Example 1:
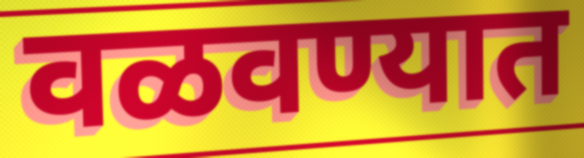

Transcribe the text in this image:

वळवण्यात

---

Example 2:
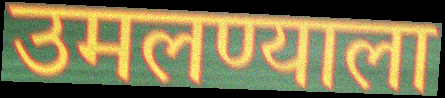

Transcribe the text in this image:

उमलण्याला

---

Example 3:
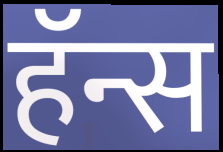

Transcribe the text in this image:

हॅन्स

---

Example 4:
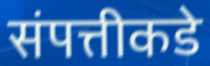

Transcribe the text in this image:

संपत्तीकडे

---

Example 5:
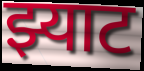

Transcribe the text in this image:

झ्याट